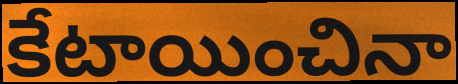
కేటాయించినా